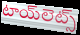
టాయ్‌లెట్స్